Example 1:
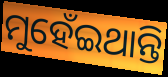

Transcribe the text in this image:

ମୁହେଁଇଥାନ୍ତି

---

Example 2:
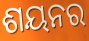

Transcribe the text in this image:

ଶୟନର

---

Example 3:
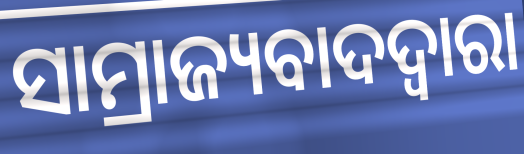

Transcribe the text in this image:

ସାମ୍ରାଜ୍ୟବାଦଦ୍ୱାରା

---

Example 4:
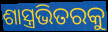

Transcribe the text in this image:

ଶାସ୍ତ୍ରଭିତରକୁ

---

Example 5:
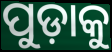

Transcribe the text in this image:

ପୁଡ଼ାକୁ